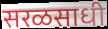
सरळसाधी